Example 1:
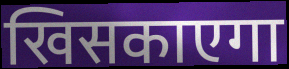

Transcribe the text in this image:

खिसकाएगा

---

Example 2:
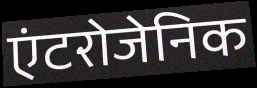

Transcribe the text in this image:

एंटरोजेनिक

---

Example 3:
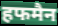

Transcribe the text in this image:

हफमैन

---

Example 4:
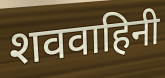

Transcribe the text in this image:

शववाहिनी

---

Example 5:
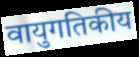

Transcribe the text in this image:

वायुगतिकीय